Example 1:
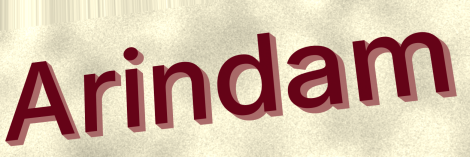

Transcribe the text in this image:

Arindam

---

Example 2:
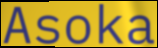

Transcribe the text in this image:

Asoka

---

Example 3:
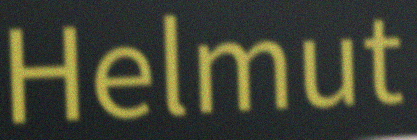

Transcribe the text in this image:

Helmut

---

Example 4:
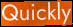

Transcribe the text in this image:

Quickly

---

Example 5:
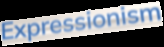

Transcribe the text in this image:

Expressionism